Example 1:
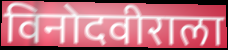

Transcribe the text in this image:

विनोदवीराला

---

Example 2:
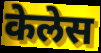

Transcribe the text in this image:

केलेस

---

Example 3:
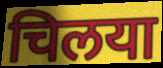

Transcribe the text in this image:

चिलया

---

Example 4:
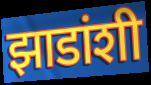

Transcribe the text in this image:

झाडांशी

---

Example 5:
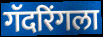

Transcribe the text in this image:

गॅदरिंगला